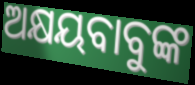
ଅକ୍ଷୟବାବୁଙ୍କ